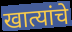
खात्यांचे